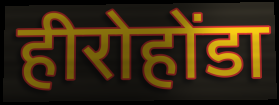
हीरोहोंडा